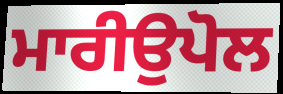
ਮਾਰੀਉਪੋਲ